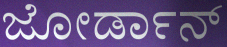
ಜೋರ್ಡಾನ್